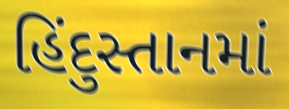
હિંદુસ્તાનમાં